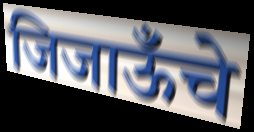
जिजाऊँचे